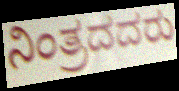
ನಿಂತ್ರದದರು